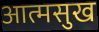
आत्मसुख